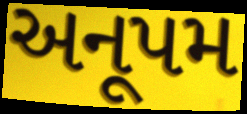
અનૂપમ